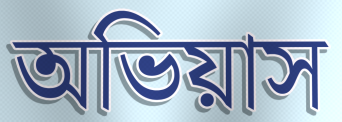
অভিয়াস